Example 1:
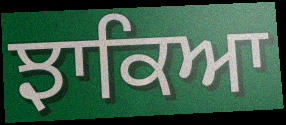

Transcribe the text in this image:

ਝਾਕਿਆ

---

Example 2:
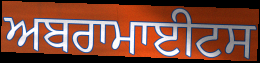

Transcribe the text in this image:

ਅਬਰਾਮਾਈਟਸ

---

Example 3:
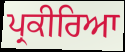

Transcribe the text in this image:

ਪ੍ਰਕੀਰਿਆ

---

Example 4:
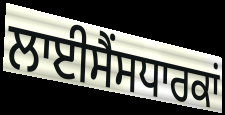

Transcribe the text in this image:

ਲਾਈਸੈਂਸਧਾਰਕਾਂ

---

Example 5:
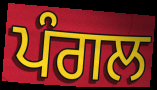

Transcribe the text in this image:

ਪੰਗਲ